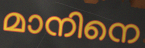
മാനിനെ